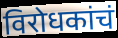
विरोधकांचं